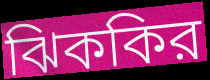
ঝিককির